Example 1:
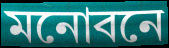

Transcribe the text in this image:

মনোবনে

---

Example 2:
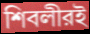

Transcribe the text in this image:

শিবলীরই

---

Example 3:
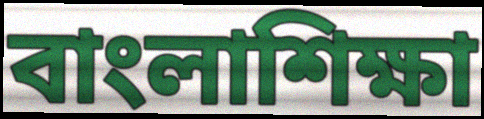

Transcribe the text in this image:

বাংলাশিক্ষা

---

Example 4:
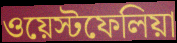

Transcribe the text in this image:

ওয়েস্টফেলিয়া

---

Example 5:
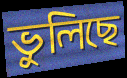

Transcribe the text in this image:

ভুলিছে